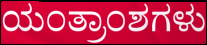
ಯಂತ್ರಾಂಶಗಳು